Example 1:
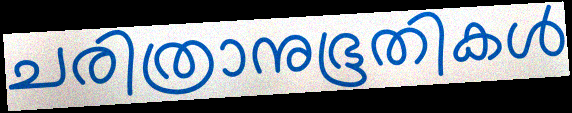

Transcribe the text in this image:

ചരിത്രാനുഭൂതികൾ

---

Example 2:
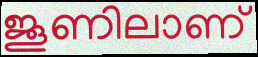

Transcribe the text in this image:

ജൂണിലാണ്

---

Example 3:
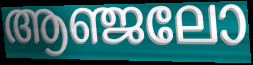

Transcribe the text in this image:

ആഞ്ജലോ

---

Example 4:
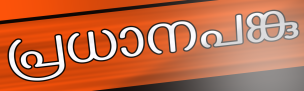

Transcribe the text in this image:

പ്രധാനപങ്കു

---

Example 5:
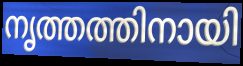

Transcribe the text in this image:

നൃത്തത്തിനായി